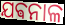
ଯଵନାଳ